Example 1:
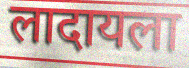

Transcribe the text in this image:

लादायला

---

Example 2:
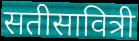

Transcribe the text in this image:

सतीसावित्री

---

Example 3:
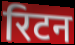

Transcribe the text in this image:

रिटन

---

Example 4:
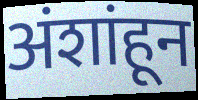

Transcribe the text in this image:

अंशांहून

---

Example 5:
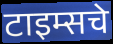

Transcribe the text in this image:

टाइम्सचे